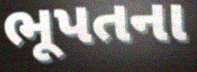
ભૂપતના